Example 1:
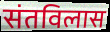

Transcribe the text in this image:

संतविलास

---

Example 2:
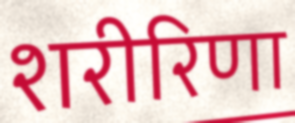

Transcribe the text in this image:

शरीरिणा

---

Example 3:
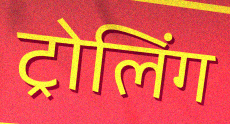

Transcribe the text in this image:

ट्रोलिंग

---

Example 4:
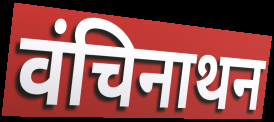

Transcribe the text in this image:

वंचिनाथन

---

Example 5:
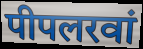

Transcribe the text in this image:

पीपलरवां